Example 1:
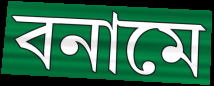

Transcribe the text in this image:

বনামে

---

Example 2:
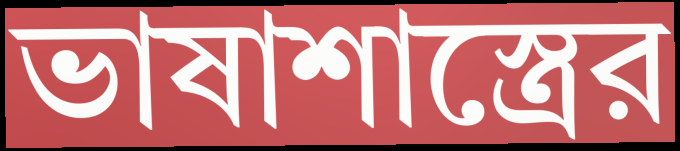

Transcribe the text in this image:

ভাষাশাস্ত্রের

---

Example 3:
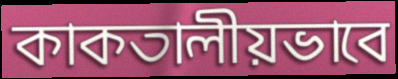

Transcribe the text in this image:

কাকতালীয়ভাবে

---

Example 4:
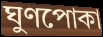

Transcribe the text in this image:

ঘুণপোকা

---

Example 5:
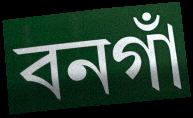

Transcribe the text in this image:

বনগাঁ